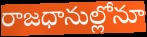
రాజధానుల్లోనూ